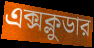
এক্সক্লুডার